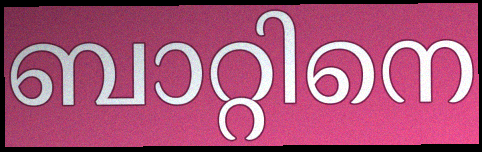
ബാറ്റിനെ